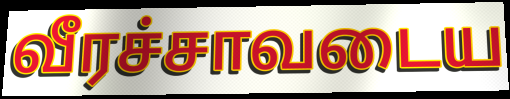
வீரச்சாவடைய